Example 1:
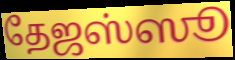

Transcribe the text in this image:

தேஜஸ்ஸூ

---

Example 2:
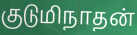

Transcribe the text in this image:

குடுமிநாதன்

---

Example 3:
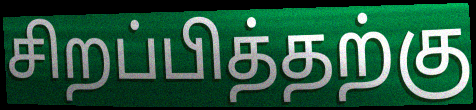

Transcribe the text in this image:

சிறப்பித்தற்கு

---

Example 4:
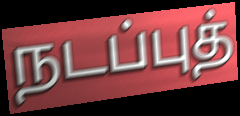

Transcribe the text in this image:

நடப்புத்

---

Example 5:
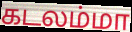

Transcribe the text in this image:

கடலம்மா